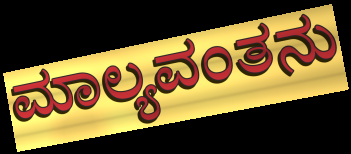
ಮಾಲ್ಯವಂತನು